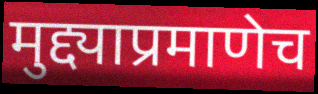
मुद्द्याप्रमाणेच